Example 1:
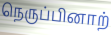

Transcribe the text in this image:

நெருப்பினாற்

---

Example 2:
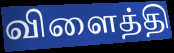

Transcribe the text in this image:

விளைத்தி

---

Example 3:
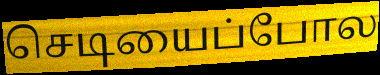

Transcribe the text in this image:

செடியைப்போல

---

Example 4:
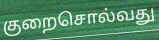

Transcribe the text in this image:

குறைசொல்வது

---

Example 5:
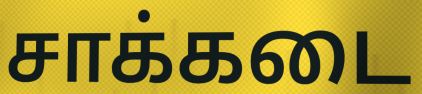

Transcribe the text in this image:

சாக்கடை